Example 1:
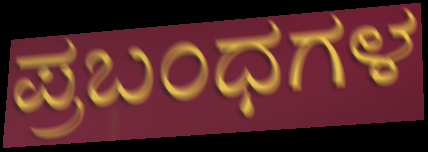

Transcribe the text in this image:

ಪ್ರಬಂಧಗಳ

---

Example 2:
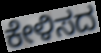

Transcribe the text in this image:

ಕೇಳಿಸದ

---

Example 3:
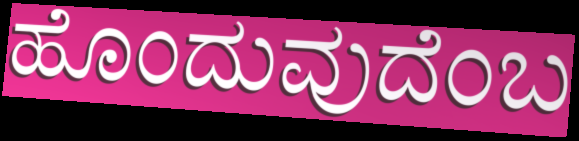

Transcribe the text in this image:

ಹೊಂದುವುದೆಂಬ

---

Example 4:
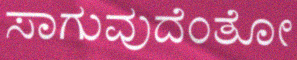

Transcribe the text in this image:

ಸಾಗುವುದೆಂತೋ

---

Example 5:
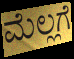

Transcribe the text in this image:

ಮೆಲ್ಲಗೆ